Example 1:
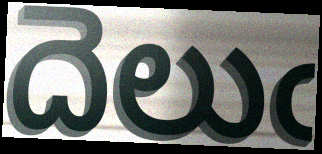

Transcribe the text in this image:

దెలుఁ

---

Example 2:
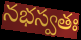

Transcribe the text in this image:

నభస్వతః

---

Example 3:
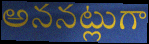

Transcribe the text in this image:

అననట్లుగా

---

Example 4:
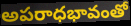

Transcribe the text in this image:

అపరాధభావంతో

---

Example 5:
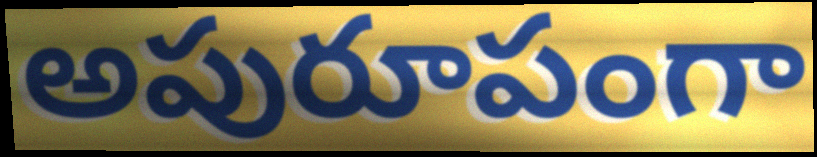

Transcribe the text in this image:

అపురూపంగా